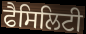
ਫੈਸਿਲਿਟੀ